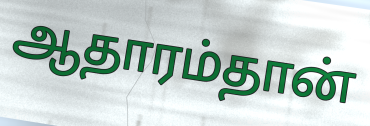
ஆதாரம்தான்